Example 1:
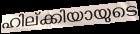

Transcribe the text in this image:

ഹില്ക്കിയായുടെ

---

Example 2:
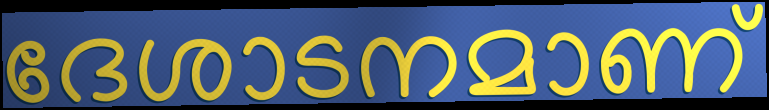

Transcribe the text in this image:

ദേശാടനമാണ്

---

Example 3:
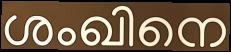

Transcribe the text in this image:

ശംഖിനെ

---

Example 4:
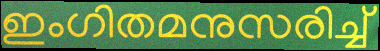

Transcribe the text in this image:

ഇംഗിതമനുസരിച്ച്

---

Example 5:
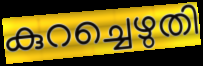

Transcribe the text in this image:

കുറച്ചെഴുതി